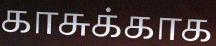
காசுக்காக